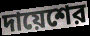
দায়েশের